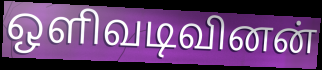
ஒளிவடிவினன்